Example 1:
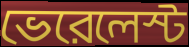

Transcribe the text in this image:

ভেরেলেস্ট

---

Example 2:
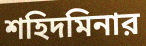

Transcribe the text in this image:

শহিদমিনার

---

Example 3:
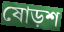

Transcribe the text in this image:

ষোড়শ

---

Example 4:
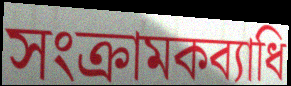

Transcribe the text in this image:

সংক্রামকব্যাধি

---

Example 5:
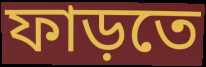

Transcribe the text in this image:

ফাড়তে